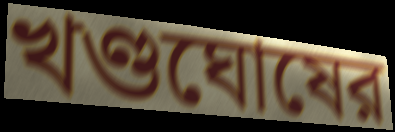
খণ্ডঘোষের